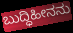
ಬುದ್ಧಿಹೀನನು